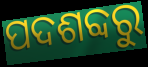
ପଦଶବ୍ଦରୁ